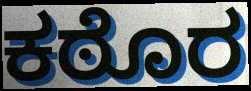
ಕಠೊರ